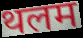
थलम